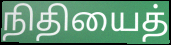
நிதியைத்